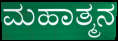
ಮಹಾತ್ಮನ